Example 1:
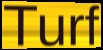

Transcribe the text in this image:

Turf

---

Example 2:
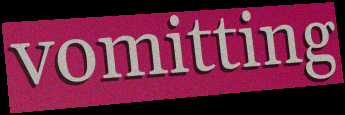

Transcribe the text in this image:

vomitting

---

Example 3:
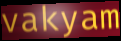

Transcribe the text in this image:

vakyam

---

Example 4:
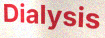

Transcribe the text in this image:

Dialysis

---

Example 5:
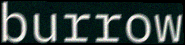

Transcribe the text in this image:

burrow